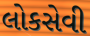
લોકસેવી